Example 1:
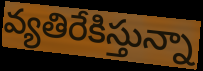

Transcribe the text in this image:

వ్యతిరేకిస్తున్నా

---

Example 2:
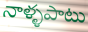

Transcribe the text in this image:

నాళ్ళపాటు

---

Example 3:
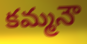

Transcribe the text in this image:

కమ్మనౌ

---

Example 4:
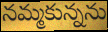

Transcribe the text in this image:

నమ్మకున్నను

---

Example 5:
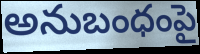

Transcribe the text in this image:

అనుబంధంపై